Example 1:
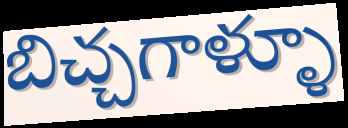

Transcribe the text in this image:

బిచ్చగాళ్ళూ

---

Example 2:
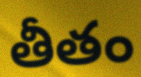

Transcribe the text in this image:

తీతం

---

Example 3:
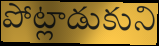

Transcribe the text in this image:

పోట్లాడుకుని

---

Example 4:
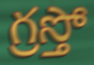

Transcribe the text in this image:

గ్రస్తో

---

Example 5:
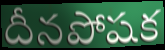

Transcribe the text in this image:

దీనపోషక